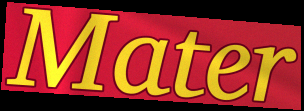
Mater